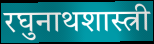
रघुनाथशास्त्री